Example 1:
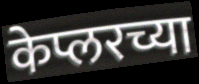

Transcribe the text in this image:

केप्लरच्या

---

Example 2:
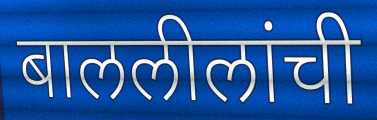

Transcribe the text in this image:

बाललीलांची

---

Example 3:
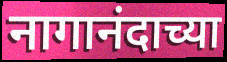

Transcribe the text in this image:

नागानंदाच्या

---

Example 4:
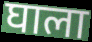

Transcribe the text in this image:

घाला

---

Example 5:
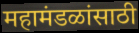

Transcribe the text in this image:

महामंडळांसाठी